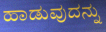
ಹಾಡುವುದನ್ನು